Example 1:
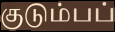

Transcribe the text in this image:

குடும்பப்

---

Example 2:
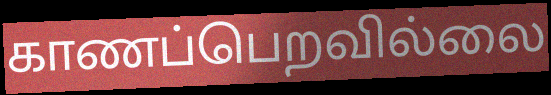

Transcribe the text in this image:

காணப்பெறவில்லை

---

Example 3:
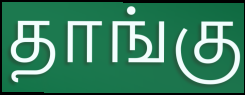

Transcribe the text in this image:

தாங்கு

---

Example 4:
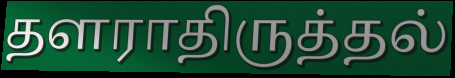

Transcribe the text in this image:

தளராதிருத்தல்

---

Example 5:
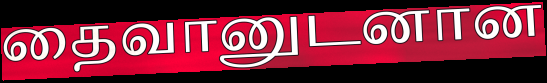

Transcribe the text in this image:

தைவானுடனான